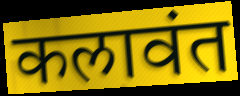
कलावंत